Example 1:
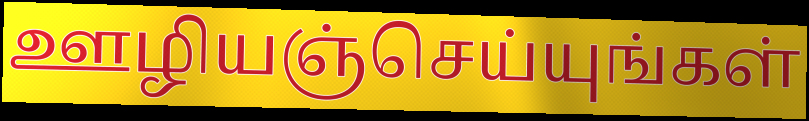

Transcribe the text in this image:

ஊழியஞ்செய்யுங்கள்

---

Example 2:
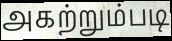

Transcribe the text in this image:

அகற்றும்படி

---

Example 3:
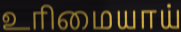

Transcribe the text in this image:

உரிமையாய்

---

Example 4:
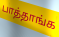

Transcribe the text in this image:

பாத்தாங்க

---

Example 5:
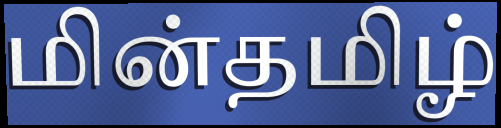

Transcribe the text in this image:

மின்தமிழ்